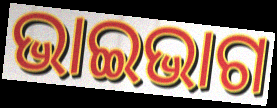
ଭାଇଭାଗ